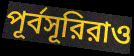
পূর্বসূরিরাও